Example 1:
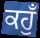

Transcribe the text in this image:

ਕਹੁਁ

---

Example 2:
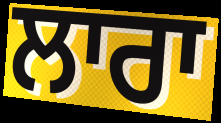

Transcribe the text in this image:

ਲਾਰਾ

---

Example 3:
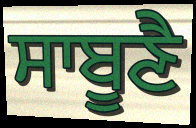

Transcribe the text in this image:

ਸਾਬੂਣੈ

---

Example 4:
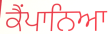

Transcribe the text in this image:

ਕੈਂਪਾਨਿਆ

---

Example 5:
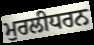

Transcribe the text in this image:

ਮੁਰਲੀਧਰਨ